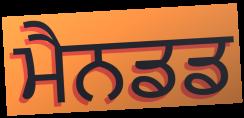
ਮੈਨਡਡ